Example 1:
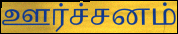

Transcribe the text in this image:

ஊர்ச்சனம்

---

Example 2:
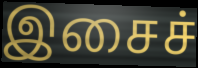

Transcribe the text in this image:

இசைச்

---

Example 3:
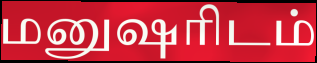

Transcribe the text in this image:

மனுஷரிடம்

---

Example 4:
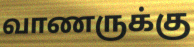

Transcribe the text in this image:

வாணருக்கு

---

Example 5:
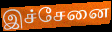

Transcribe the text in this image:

இச்சேனை